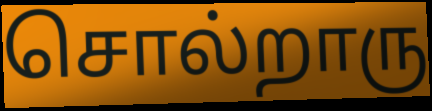
சொல்றாரு